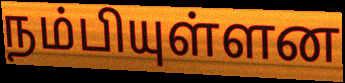
நம்பியுள்ளன